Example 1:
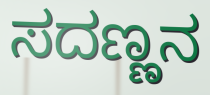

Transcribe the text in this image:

ಸದಣ್ಣನ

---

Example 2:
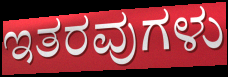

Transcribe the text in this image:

ಇತರವುಗಳು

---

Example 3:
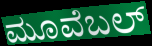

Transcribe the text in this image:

ಮೂವೆಬಲ್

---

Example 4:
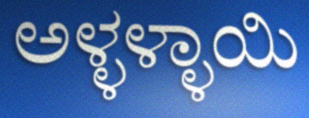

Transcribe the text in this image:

ಅಳ್ಳಳ್ಳಾಯಿ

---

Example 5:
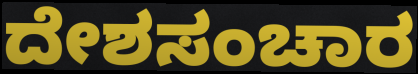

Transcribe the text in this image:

ದೇಶಸಂಚಾರ